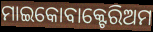
ମାଇକୋବାକ୍ଟେରିଅମ